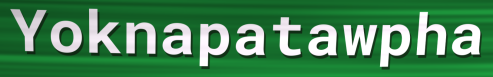
Yoknapatawpha